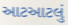
આટઆટલું